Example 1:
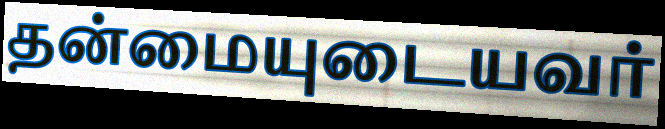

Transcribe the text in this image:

தன்மையுடையவர்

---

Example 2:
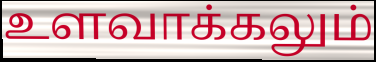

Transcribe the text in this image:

உளவாக்கலும்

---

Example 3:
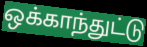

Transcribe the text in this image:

ஒக்காந்துட்டு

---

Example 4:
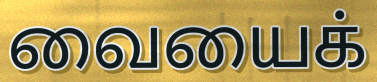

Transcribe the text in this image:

வையைக்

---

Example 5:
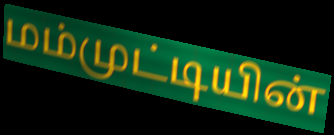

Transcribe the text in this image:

மம்முட்டியின்